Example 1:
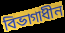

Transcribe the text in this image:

বিভাগাধীন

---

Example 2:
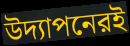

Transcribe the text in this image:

উদ্যাপনেরই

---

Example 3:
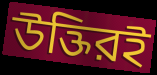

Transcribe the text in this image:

উক্তিরই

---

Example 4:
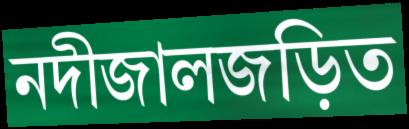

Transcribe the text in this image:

নদীজালজড়িত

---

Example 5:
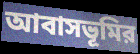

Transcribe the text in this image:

আবাসভূমির